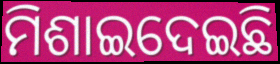
ମିଶାଇଦେଇଛି